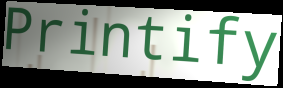
Printify